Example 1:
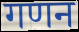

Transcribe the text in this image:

गणन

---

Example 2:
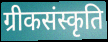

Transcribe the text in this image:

ग्रीकसंस्कृति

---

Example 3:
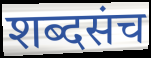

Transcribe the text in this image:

शब्दसंच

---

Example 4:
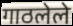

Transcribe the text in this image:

गाठलेले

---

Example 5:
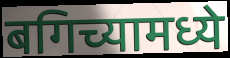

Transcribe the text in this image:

बगिच्यामध्ये